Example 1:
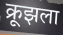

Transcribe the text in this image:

क्रूझला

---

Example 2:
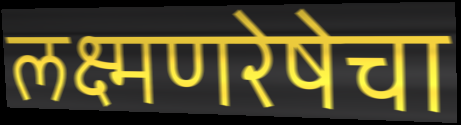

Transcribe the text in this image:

लक्ष्मणरेषेचा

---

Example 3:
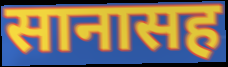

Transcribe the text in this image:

सानासह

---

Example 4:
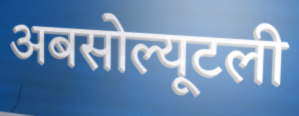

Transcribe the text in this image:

अबसोल्यूटली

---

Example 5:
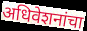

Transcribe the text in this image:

अधिवेशनांचा